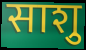
साश्रु